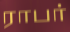
ராபர்